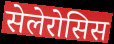
सेलेरोसिस